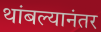
थांबल्यानंतर